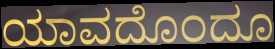
ಯಾವದೊಂದೂ